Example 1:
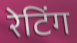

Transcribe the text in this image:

रेटिंग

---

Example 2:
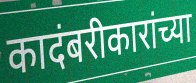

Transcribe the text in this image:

कादंबरीकारांच्या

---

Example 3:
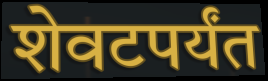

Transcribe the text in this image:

शेवटपर्यंत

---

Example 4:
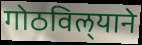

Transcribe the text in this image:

गोठविल्याने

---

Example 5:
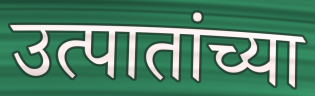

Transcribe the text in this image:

उत्पातांच्या